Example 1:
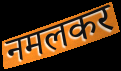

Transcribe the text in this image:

नमलकर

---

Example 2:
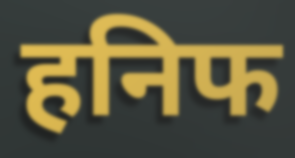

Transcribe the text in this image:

हनिफ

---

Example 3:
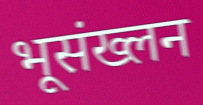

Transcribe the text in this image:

भूसंख्लन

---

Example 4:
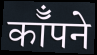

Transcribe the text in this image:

कॉँपने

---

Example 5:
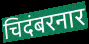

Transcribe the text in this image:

चिदंबरनार